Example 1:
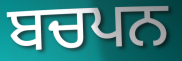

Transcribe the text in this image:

ਬਚਪਨ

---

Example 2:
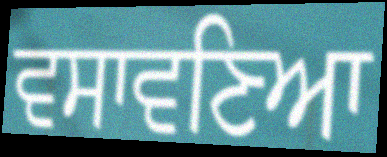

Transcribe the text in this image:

ਵਸਾਵਣਿਆ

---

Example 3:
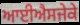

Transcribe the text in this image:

ਆਈਐਸਜੇਕੇ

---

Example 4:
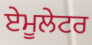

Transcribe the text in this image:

ਏਮੂਲੇਟਰ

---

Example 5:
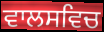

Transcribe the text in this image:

ਵਾਲਸਵਿਚ